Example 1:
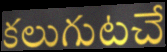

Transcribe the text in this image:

కలుగుటచే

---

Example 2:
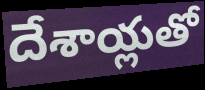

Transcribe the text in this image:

దేశాయ్లతో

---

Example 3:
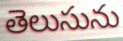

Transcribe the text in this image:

తెలుసును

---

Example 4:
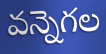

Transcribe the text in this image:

వన్నెగల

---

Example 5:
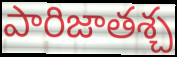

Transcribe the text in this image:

పారిజాతశ్చ